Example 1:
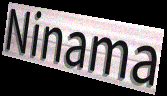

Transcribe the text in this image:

Ninama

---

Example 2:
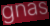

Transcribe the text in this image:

gnas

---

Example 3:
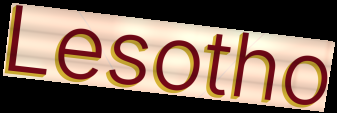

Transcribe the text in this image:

Lesotho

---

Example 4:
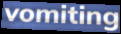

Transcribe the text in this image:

vomiting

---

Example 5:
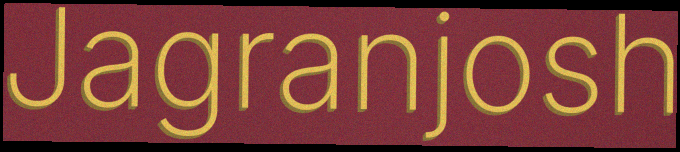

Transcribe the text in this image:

Jagranjosh